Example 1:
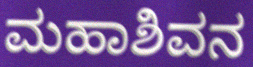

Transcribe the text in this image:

ಮಹಾಶಿವನ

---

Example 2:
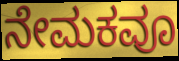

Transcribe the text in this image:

ನೇಮಕವೂ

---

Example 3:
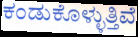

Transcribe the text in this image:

ಕಂಡುಕೊಳ್ಳುತ್ತಿವೆ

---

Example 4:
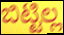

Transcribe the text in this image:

ಬಿಟ್ಟಿಲ್ಲ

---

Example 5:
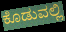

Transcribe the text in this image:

ಕೊಡುವಲ್ಲಿ